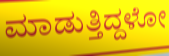
ಮಾಡುತ್ತಿದ್ದಳೋ